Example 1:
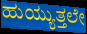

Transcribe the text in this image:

ಹುಯ್ಯುತ್ತಲೇ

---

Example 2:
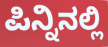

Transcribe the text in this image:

ಪಿನ್ನಿನಲ್ಲಿ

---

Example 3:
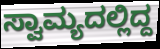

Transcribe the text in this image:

ಸ್ವಾಮ್ಯದಲ್ಲಿದ್ದ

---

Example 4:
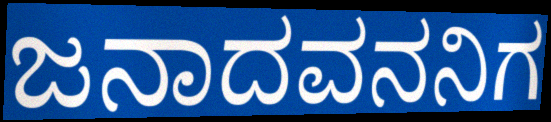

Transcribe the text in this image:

ಜನಾದವನನಿಗ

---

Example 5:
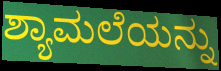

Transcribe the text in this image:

ಶ್ಯಾಮಲೆಯನ್ನು